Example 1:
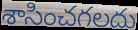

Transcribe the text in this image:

శాసించగలదు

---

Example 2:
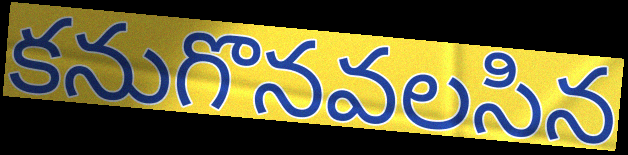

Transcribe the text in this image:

కనుగొనవలసిన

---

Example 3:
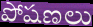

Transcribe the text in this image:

పోషణలు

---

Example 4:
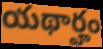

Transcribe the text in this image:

యథార్హం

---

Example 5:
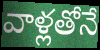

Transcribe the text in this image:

వాళ్లతోనే